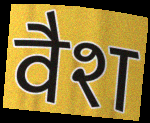
वैश